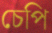
চেপি